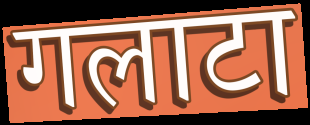
गलाटा